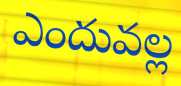
ఎందువల్ల